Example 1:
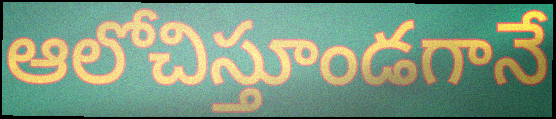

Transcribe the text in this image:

ఆలోచిస్తూండగానే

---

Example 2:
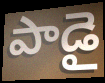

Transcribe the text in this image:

పాడై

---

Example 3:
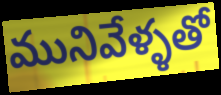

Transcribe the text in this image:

మునివేళ్ళతో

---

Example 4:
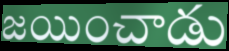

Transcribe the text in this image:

జయించాడు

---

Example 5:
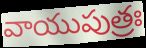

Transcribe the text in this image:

వాయుపుత్రః